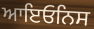
ਆਇਓਨਿਸ